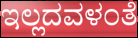
ಇಲ್ಲದವಳಂತೆ